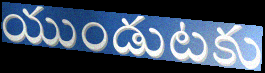
యుండుటకు